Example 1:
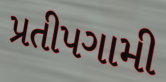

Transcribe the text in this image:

પ્રતીપગામી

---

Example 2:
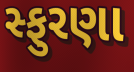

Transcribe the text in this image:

સ્ફુરણા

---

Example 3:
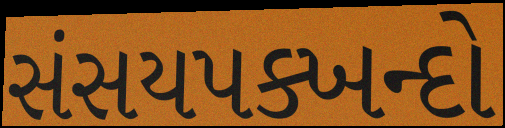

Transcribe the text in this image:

સંસયપક્ખન્દો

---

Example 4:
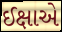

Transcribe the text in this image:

ઈક્ષાએ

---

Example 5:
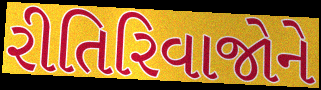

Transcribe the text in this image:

રીતિરિવાજોને